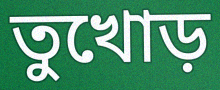
তুখোড়